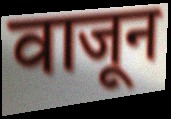
वाजून